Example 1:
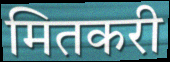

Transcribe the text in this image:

मितकरी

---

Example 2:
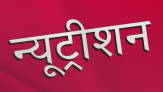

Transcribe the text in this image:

न्यूट्रीशन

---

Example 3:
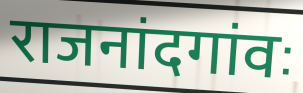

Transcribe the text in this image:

राजनांदगांवः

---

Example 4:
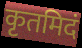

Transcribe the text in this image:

कृतमिदं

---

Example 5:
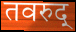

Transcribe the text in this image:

तवरुद्